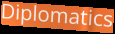
Diplomatics